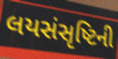
લયસંસૃષ્ટિની